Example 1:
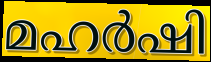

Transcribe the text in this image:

മഹർഷി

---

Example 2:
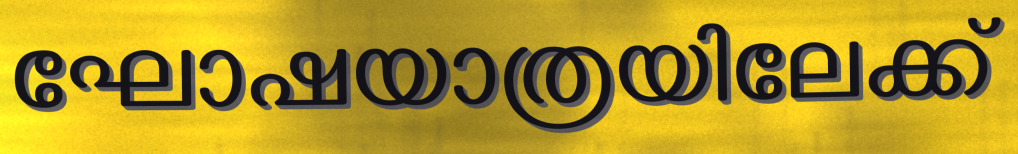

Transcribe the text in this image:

ഘോഷയാത്രയിലേക്ക്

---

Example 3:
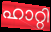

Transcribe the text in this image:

ഹാറ്റി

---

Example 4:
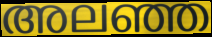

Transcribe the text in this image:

അലഞ്ഞ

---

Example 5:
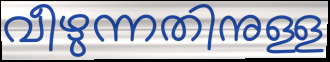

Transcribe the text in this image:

വീഴുന്നതിനുള്ള